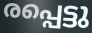
രപ്പെട്ടു